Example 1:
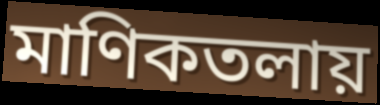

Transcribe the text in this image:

মাণিকতলায়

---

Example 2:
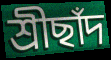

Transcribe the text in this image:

শ্রীছাঁদ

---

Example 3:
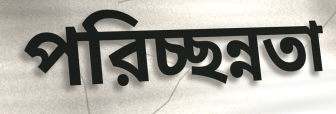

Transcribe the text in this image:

পরিচ্ছন্নতা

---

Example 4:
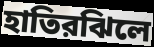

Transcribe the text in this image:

হাতিরঝিলে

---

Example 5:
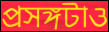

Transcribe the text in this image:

প্রসঙ্গটাও